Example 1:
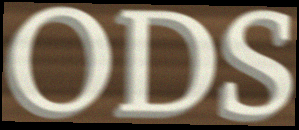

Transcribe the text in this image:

ODS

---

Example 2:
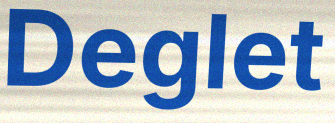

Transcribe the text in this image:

Deglet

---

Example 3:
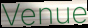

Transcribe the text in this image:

Venue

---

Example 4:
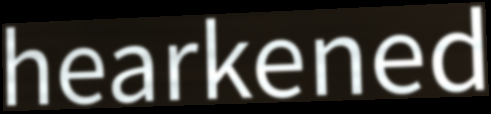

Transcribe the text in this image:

hearkened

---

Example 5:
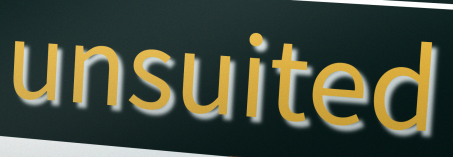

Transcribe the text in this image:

unsuited